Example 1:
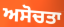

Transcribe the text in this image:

ਅਸੋਚਤਾ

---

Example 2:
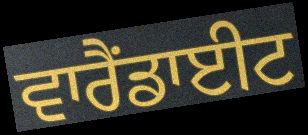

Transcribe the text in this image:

ਵਾਰੈਂਡਾਈਟ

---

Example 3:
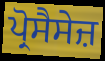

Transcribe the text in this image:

ਪ੍ਰੋਸੈਸੇਜ਼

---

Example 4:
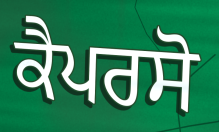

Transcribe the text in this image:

ਕੈਪਰਸੋ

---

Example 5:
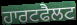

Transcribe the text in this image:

ਹਾਰਟਫੈਲਟ